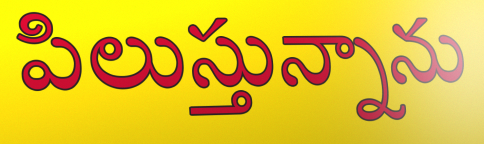
పిలుస్తున్నాను